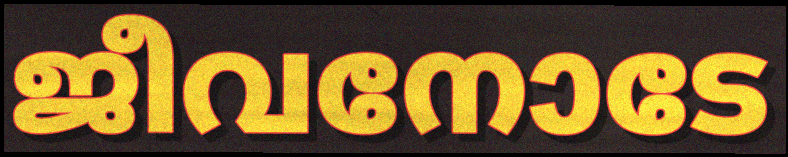
ജീവനോടേ